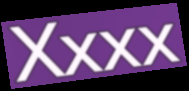
Xxxx